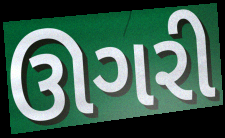
ઊગરી